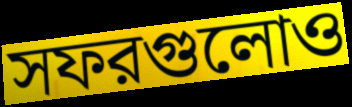
সফরগুলোও